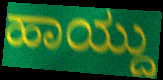
ಹಾಯ್ದು